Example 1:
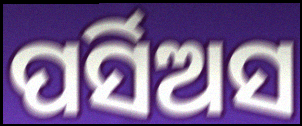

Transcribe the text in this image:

ପର୍ସିଅସ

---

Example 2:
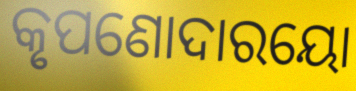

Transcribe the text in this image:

କୃପଣୋଦାରୟୋ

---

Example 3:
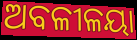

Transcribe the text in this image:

ଅବଳୀଳୟା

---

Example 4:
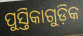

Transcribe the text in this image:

ପୁସ୍ତିକାଗୁଡ଼ିକ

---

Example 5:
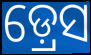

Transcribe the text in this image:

ଡ଼୍ରେସ